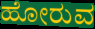
ಹೋರುವ